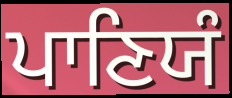
ਪਾਣਿਯੰ